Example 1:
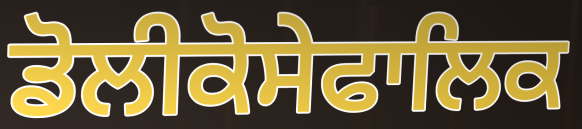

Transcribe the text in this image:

ਡੋਲੀਕੋਸੇਫਾਲਿਕ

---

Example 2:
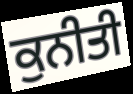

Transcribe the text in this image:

ਕੁਨੀਤੀ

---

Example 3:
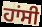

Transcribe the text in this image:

ਹਾਂਸੀ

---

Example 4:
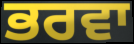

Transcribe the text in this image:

ਭਰਵਾ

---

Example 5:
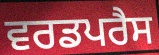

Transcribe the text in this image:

ਵਰਡਪਰੈਸ